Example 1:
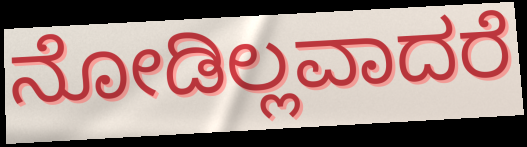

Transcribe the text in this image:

ನೋಡಿಲ್ಲವಾದರೆ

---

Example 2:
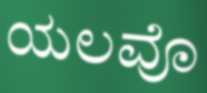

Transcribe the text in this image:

ಯಲವೊ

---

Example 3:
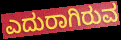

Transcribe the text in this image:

ಎದುರಾಗಿರುವ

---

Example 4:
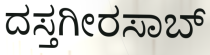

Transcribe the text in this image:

ದಸ್ತಗೀರಸಾಬ್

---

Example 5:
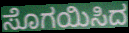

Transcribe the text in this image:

ಸೊಗಯಿಸಿದ